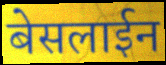
बेसलाईन